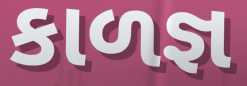
કાળજ્ઞ